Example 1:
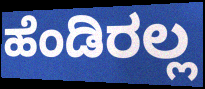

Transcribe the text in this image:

ಹೆಂಡಿರಲ್ಲ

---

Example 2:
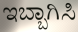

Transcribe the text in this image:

ಇಬ್ಬಾಗಿಸಿ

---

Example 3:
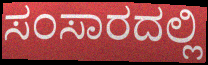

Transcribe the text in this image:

ಸಂಸಾರದಲ್ಲಿ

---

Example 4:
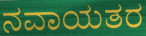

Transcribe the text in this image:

ನವಾಯತರ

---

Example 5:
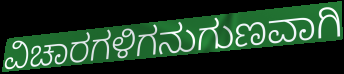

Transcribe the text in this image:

ವಿಚಾರಗಳಿಗನುಗುಣವಾಗಿ